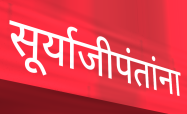
सूर्याजीपंतांना